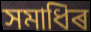
সমাধিৰ